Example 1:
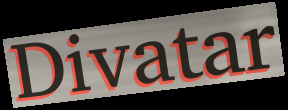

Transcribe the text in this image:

Divatar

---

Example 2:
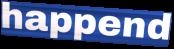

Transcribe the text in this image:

happend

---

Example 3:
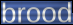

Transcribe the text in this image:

brood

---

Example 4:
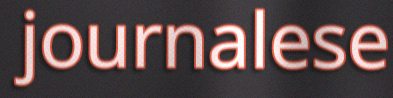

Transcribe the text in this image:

journalese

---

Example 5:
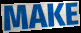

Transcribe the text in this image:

MAKE